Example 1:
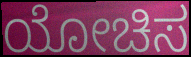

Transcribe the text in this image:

ಯೋಚಿಸ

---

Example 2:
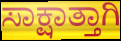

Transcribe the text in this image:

ಸಾಕ್ಷಾತ್ತಾಗಿ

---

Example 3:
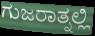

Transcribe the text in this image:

ಗುಜರಾತ್ನಲ್ಲಿ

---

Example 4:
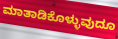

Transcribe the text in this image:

ಮಾತಾಡಿಕೊಳ್ಳುವುದೂ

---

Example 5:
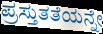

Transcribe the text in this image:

ಪ್ರಸ್ತುತತೆಯನ್ನೇ